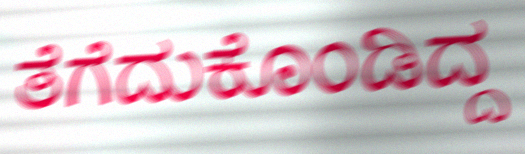
ತೆಗೆದುಕೊಂಡಿದ್ದ